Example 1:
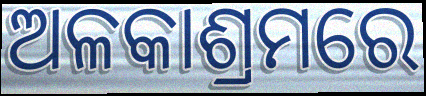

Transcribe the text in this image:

ଅଳକାଶ୍ରମରେ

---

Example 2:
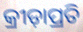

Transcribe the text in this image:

କ୍ରୀଡ଼ାପ୍ରତି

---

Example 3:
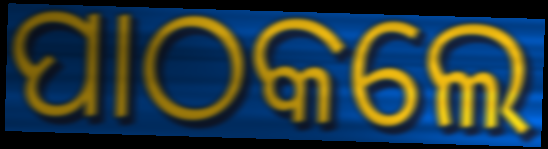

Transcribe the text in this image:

ପାଠକଲେ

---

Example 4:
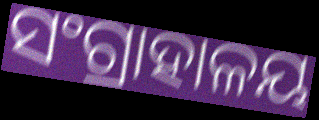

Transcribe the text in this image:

ସଂଗ୍ରାହାଳୟ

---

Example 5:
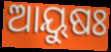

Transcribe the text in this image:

ଆୟୁଷଃ